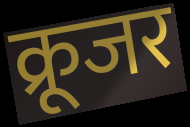
क्रूजर